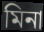
মিনা